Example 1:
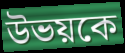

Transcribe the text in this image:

উভয়কে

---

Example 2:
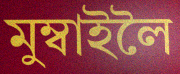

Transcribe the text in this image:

মুম্বাইলৈ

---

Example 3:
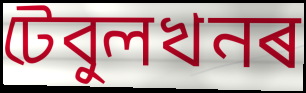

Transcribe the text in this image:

টেবুলখনৰ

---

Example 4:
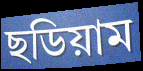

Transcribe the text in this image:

ছডিয়াম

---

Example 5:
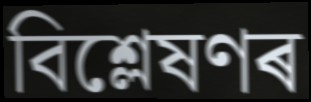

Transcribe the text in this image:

বিশ্লেষণৰ